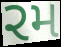
રમ